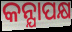
କନ୍ଯାପକ୍ଷ